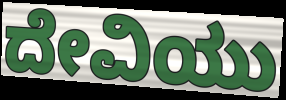
ದೇವಿಯು